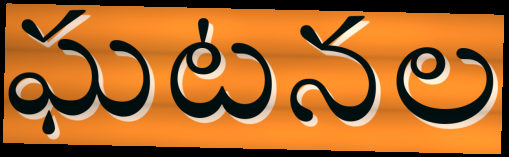
ఘటనల